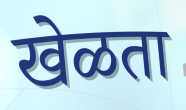
खेळता